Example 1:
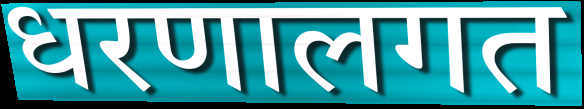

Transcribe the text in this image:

धरणालगत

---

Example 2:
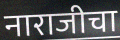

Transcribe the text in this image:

नाराजीचा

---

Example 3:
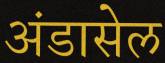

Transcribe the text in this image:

अंडासेल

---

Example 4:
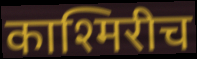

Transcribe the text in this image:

काश्मिरीच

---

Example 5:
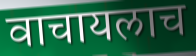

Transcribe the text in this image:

वाचायलाच